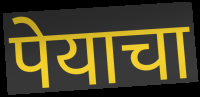
पेयाचा